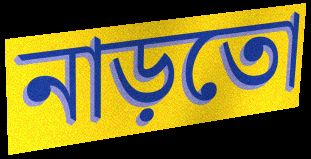
নাড়তো